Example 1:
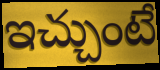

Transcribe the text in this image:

ఇచ్చుంటే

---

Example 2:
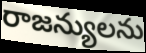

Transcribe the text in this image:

రాజన్యులను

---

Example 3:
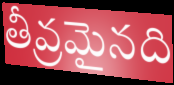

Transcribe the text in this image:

తీవ్రమైనది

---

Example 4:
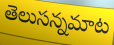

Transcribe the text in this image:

తెలుసన్నమాట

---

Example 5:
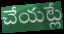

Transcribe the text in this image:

చేయట్లే